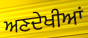
ਅਣਦੇਖੀਆਂ